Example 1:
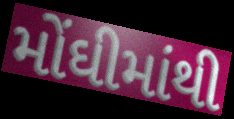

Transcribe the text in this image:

મોંઘીમાંથી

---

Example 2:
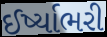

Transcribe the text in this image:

ઈર્ષ્યાભરી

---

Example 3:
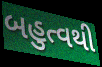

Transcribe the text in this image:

બહુત્વથી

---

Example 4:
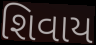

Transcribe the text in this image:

શિવાય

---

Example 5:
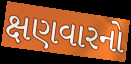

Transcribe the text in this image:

ક્ષણવારનો